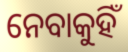
ନେବାକୁହିଁ